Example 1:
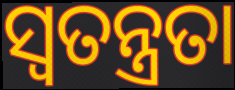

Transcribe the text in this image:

ସ୍ବତନ୍ତ୍ରତା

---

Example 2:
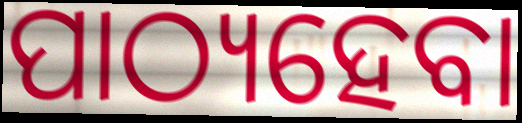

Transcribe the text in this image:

ପାଠ୍ୟହେବା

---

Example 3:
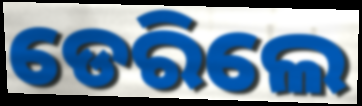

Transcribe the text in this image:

ଡେରିଲେ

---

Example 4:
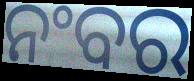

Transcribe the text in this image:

ନଂବର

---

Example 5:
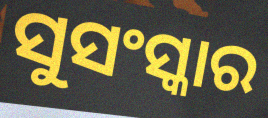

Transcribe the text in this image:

ସୁସଂସ୍କାର